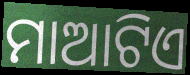
ମାଆଟିଏ